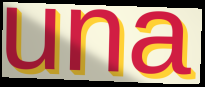
una